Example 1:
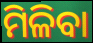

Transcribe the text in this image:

ମିଳିବା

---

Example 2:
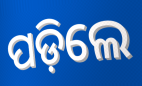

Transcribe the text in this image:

ପଡ଼ିଲେ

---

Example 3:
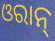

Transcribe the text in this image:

ଓରାନ୍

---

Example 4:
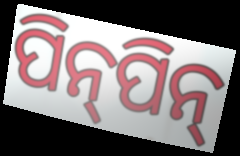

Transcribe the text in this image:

ପିନ୍‍ପିନ୍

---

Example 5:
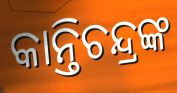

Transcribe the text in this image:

କାନ୍ତିଚନ୍ଦ୍ରଙ୍କ